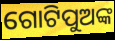
ଗୋଟିପୁଅଙ୍କ